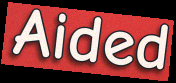
Aided